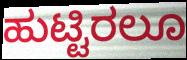
ಹುಟ್ಟಿರಲೂ